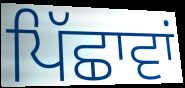
ਪਿੱਛਾਵਾਂ